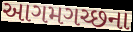
આગમગચ્છના